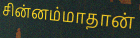
சின்னம்மாதான்